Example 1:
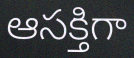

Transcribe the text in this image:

ఆసక్తిగా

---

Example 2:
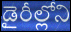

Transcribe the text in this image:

డైరీల్లోని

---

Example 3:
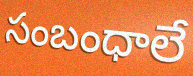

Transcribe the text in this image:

సంబంధాలే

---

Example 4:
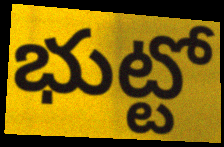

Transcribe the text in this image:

భుట్టో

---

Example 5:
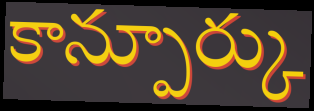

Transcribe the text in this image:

కాన్పూర్కు